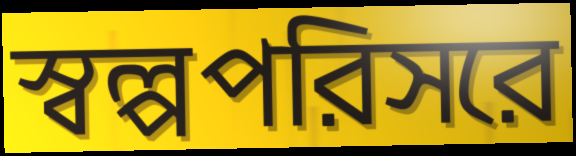
স্বল্পপরিসরে